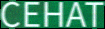
CEHAT